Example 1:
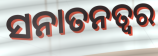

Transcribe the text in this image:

ସନାତନତ୍ୱର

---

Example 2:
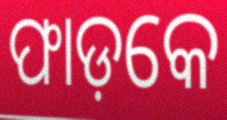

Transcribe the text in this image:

ଫାଡ଼କେ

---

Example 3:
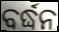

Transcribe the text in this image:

ବର୍ଦ୍ଧନ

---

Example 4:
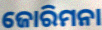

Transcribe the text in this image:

ଜୋରିମନା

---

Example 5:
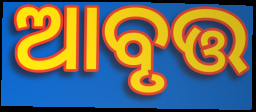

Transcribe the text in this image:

ଆବୃତ୍ତ